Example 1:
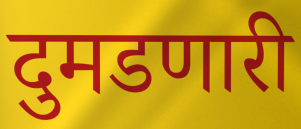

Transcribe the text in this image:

दुमडणारी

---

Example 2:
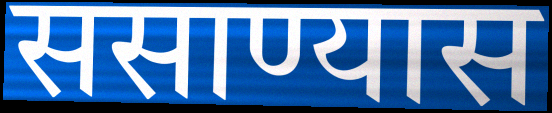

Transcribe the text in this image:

ससाण्यास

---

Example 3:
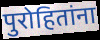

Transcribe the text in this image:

पुरोहितांना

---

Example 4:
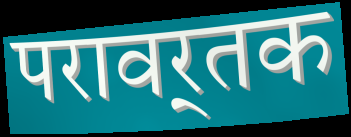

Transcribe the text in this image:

परावर्तक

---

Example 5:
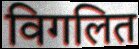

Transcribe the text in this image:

विगलित